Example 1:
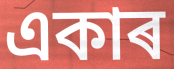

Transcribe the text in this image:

একাৰ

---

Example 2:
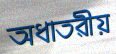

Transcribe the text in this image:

অধাতৱীয়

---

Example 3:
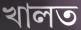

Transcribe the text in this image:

খালত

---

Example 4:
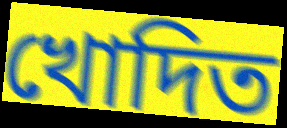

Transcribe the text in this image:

খোদিত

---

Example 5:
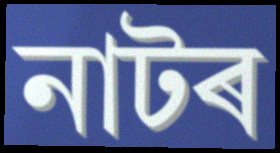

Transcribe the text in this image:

নাটৰ